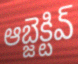
ఆబ్జెక్టివ్